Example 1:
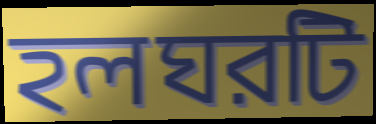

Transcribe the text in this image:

হলঘরটি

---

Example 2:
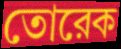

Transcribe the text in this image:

তোরেক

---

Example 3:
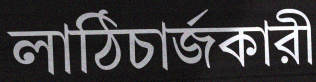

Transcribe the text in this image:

লাঠিচার্জকারী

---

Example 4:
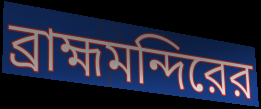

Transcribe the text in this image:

ব্রাহ্মমন্দিরের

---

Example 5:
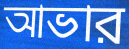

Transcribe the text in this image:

আভার